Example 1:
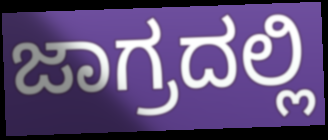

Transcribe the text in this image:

ಜಾಗ್ರದಲ್ಲಿ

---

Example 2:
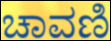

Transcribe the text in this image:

ಚಾವಣಿ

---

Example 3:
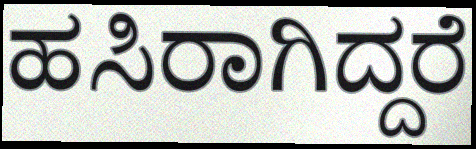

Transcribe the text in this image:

ಹಸಿರಾಗಿದ್ದರೆ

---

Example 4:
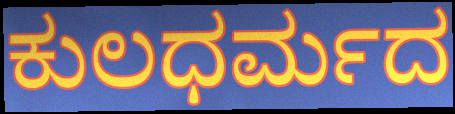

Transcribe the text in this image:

ಕುಲಧರ್ಮದ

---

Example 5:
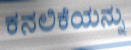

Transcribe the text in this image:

ಕನಲಿಕೆಯನ್ನು